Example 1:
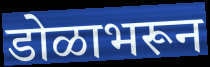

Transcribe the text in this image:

डोळाभरून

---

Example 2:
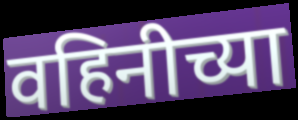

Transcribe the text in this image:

वहिनीच्या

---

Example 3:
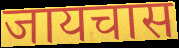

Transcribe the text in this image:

जायचास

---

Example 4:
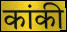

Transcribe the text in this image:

कांकी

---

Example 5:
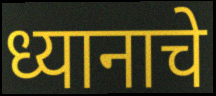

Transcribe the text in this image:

ध्यानाचे